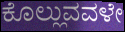
ಕೊಲ್ಲುವವಳೇ